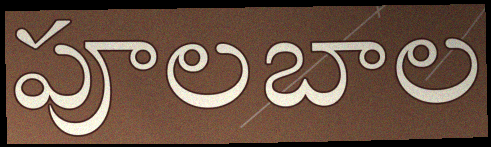
పూలబాల